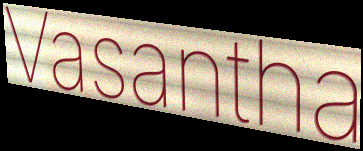
Vasantha